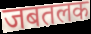
जबतलक